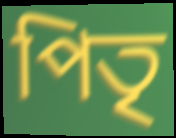
পিতৃ